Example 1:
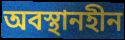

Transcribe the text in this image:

অবস্থানহীন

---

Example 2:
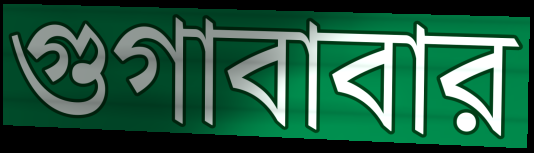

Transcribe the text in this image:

গুগাবাবার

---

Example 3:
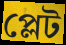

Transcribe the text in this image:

প্লেট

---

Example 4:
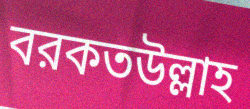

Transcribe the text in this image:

বরকতউল্লাহ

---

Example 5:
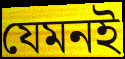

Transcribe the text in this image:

যেমনই